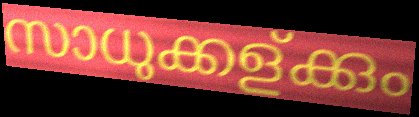
സാധുക്കള്ക്കും